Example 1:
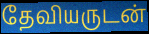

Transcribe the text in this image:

தேவியருடன்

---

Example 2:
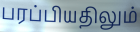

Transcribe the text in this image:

பரப்பியதிலும்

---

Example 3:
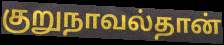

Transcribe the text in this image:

குறுநாவல்தான்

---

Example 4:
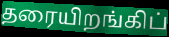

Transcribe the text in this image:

தரையிறங்கிப்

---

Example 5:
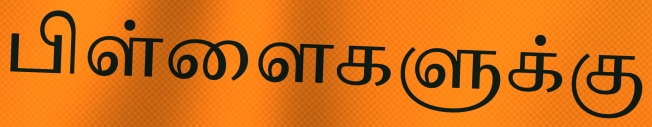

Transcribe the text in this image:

பிள்ளைகளுக்கு